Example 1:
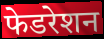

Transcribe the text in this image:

फेडरेशन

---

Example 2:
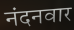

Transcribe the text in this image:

नंदनवार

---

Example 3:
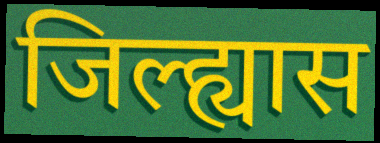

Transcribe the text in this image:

जिल्ह्यास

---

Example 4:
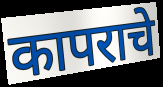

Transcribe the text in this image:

कापराचे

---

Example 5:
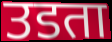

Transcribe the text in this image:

उडता